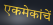
एकमेकांचें